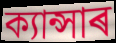
ক্যান্সাৰ